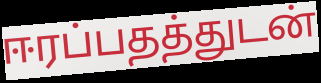
ஈரப்பதத்துடன்